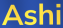
Ashi